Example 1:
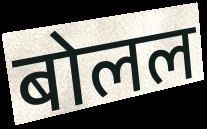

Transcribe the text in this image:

बोलल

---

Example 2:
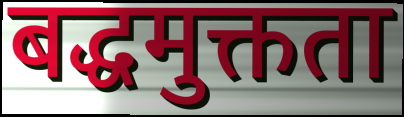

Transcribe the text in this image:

बद्धमुक्तता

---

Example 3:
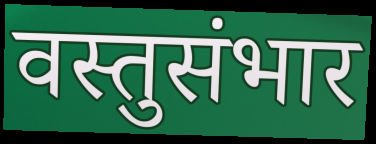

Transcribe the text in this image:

वस्तुसंभार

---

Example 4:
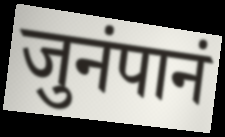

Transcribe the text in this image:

जुनंपानं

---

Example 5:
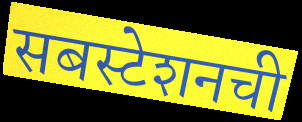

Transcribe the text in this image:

सबस्टेशनची